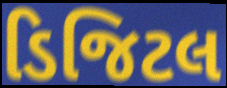
ડિજિટલ